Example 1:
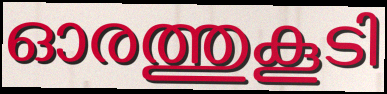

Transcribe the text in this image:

ഓരത്തുകൂടി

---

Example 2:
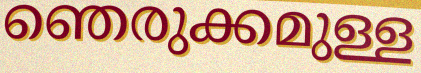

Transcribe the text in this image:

ഞെരുക്കമുള്ള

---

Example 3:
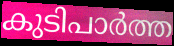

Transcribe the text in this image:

കുടിപാർത്ത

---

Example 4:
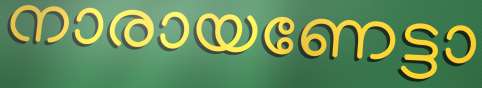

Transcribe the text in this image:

നാരായണേട്ടാ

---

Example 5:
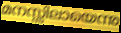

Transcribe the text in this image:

മനസ്സിലായെന്നു